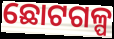
ଛୋଟଗଳ୍ପ